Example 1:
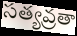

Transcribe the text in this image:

సత్యవ్రతా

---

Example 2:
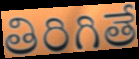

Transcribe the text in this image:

తిరిగితే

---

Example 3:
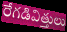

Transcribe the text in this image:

రేగడివిత్తులు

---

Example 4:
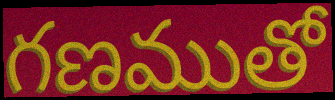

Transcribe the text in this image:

గణముతో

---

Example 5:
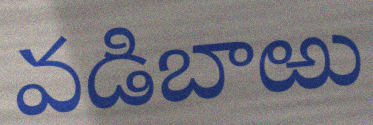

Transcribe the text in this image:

వడిబాఱు